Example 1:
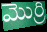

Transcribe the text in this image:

మొర్రి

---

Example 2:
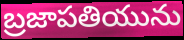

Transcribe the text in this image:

బ్రజాపతియును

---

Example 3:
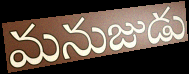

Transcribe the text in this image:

మనుజుడు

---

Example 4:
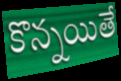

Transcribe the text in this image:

కొన్నయితే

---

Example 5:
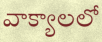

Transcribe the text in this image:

వాక్యాలలో